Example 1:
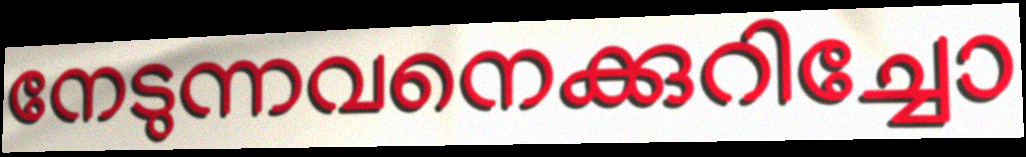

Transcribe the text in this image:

നേടുന്നവനെക്കുറിച്ചോ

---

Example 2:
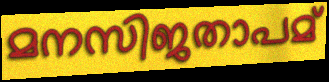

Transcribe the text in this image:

മനസിജതാപമ്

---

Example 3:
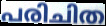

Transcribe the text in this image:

പരിചിത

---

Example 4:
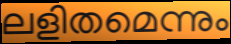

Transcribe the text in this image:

ലളിതമെന്നും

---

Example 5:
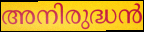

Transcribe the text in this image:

അനിരുദ്ധൻ